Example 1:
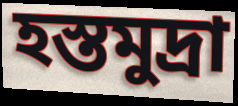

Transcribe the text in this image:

হস্তমুদ্রা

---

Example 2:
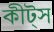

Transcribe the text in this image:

কীট্স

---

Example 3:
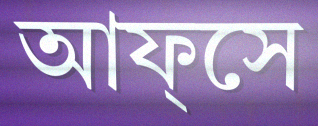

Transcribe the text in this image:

আফ্সে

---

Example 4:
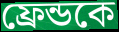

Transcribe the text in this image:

ফ্রেন্ডকে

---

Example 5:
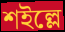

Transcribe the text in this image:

শইল্লে